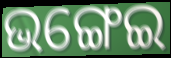
ଭଙ୍ଗେଇ